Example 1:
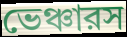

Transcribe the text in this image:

ভেঞ্চারস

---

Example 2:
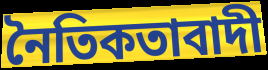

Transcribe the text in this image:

নৈতিকতাবাদী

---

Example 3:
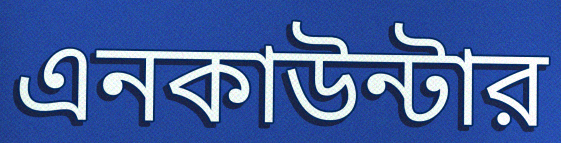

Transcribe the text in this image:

এনকাউন্টার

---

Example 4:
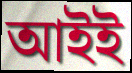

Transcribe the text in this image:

আইই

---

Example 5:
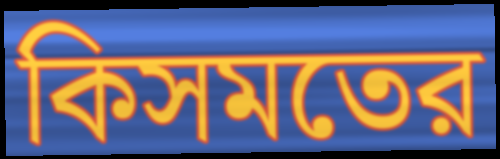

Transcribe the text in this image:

কিসমতের